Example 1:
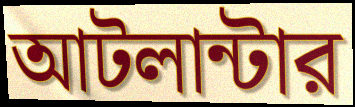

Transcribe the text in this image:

আটলান্টার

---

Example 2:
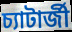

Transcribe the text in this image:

চ্যাটার্জী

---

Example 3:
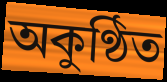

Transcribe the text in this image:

অকুণ্ঠিত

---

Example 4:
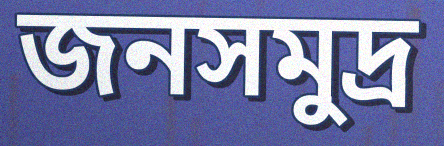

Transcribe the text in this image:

জনসমুদ্র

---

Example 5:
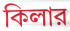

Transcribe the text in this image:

কিলার